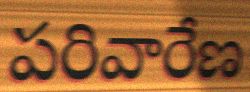
పరివారేణ